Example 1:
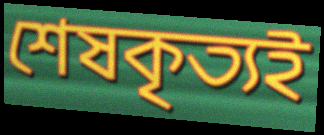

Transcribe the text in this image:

শেষকৃত্যই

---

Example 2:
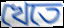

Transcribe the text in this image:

খেতে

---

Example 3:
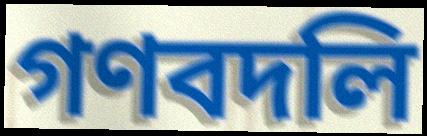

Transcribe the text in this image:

গণবদলি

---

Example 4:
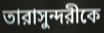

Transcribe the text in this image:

তারাসুন্দরীকে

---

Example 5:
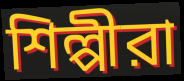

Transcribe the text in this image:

শিল্পীরা